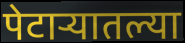
पेटाऱ्यातल्या